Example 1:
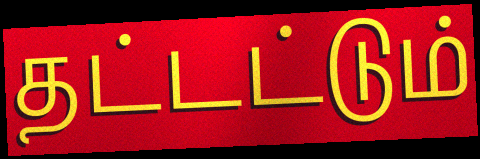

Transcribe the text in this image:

தட்டட்டும்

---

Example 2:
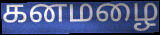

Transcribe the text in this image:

கனமழை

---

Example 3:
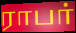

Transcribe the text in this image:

ராபர்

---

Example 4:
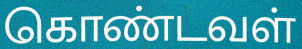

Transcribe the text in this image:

கொண்டவள்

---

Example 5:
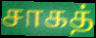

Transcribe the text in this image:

சாகத்